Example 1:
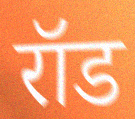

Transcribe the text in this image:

रॉड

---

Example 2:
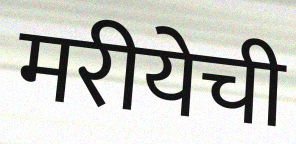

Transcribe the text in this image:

मरीयेची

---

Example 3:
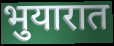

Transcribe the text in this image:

भुयारात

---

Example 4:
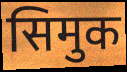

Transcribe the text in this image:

सिमुक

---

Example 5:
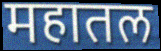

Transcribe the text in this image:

महातल